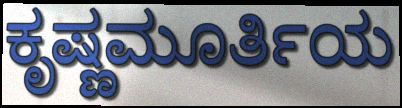
ಕೃಷ್ಣಮೂರ್ತಿಯ